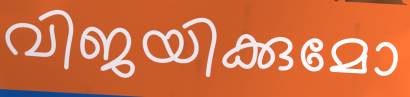
വിജയിക്കുമോ